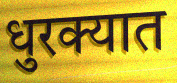
धुरक्यात